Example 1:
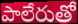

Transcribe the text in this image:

పాలేరుతో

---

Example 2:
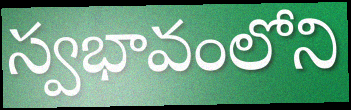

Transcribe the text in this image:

స్వభావంలోని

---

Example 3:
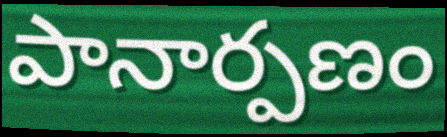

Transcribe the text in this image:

పానార్పణం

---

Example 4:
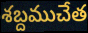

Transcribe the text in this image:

శబ్దముచేత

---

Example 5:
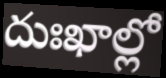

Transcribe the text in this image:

దుఃఖాల్లో